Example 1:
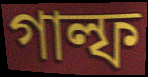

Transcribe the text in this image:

গাল্ফ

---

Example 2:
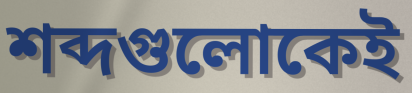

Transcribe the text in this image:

শব্দগুলোকেই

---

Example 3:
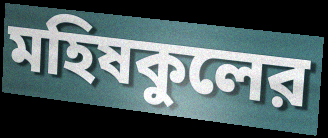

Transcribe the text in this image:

মহিষকুলের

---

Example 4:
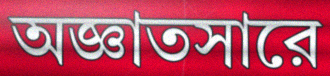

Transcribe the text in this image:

অজ্ঞাতসারে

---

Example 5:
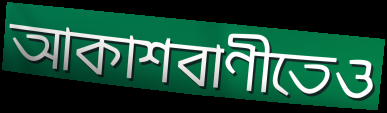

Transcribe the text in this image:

আকাশবাণীতেও